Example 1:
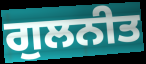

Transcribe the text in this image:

ਗੁਲਨੀਤ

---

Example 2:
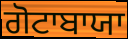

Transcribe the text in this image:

ਗੋਟਾਬਾਯਾ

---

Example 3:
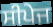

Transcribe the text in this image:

ਸੀਪੇਜ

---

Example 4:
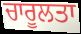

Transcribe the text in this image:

ਚਾਰੂਲਤਾ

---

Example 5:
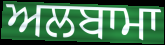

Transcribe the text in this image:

ਅਲਬਾਮਾ